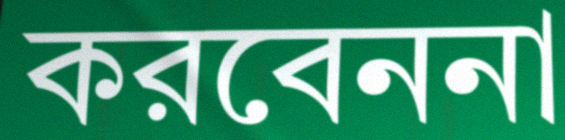
করবেননা